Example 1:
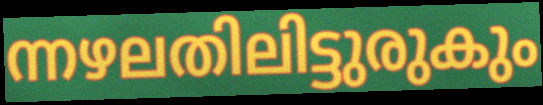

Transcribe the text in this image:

ന്നഴലതിലിട്ടുരുകും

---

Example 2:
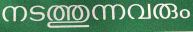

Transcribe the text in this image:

നടത്തുന്നവരും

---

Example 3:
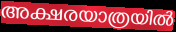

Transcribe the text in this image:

അക്ഷരയാത്രയിൽ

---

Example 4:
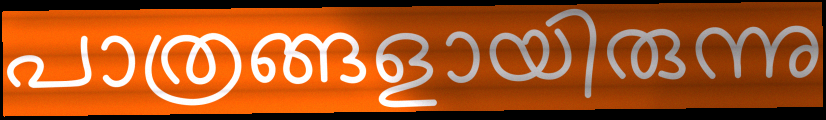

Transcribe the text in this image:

പാത്രങ്ങളായിരുന്നു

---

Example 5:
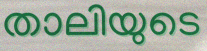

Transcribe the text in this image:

താലിയുടെ